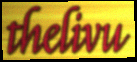
thelivu